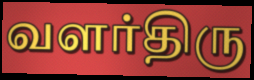
வளர்திரு